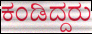
ಕಂಡಿದ್ದರು